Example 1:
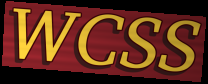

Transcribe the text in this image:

WCSS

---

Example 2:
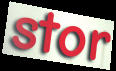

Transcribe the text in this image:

stor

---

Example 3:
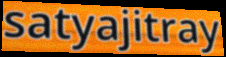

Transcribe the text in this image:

satyajitray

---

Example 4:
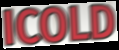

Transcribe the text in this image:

ICOLD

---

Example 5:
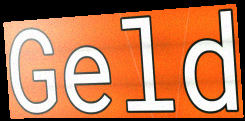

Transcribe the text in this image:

Geld